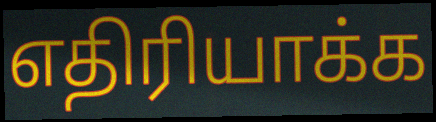
எதிரியாக்க